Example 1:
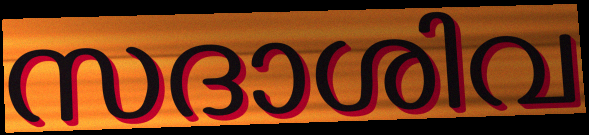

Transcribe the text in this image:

സദാശിവ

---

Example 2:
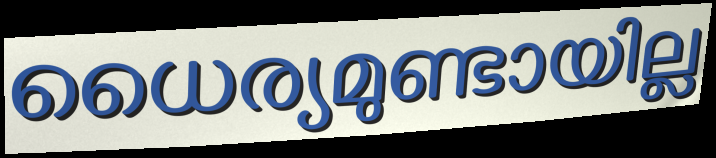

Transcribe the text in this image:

ധൈര്യമുണ്ടായില്ല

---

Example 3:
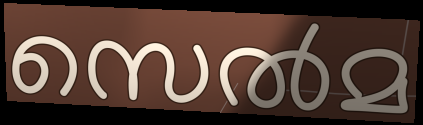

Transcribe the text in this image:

സെൽമ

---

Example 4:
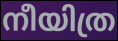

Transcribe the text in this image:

നീയിത്ര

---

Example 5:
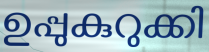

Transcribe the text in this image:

ഉപ്പുകുറുക്കി